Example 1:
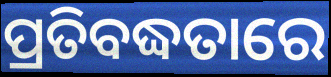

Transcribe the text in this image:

ପ୍ରତିବଦ୍ଧତାରେ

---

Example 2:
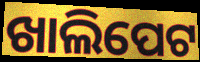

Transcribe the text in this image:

ଖାଲିପେଟ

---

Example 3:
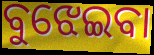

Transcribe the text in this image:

ବୁଝେଇବା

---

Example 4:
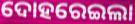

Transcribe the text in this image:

ଦୋହରେଇଲା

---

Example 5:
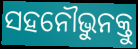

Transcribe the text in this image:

ସହନୌଭୁନକ୍ତୁ